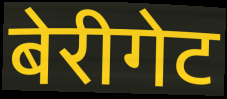
बेरीगेट